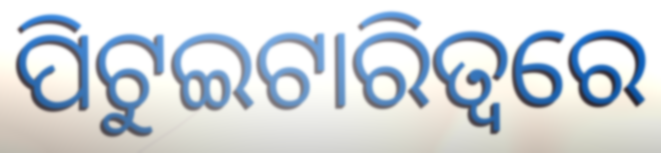
ପିଟୁଇଟାରିତ୍ୱରେ